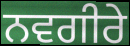
ਨਵਗੀਰੇ